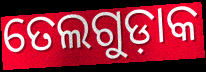
ତେଲଗୁଡ଼ାକ